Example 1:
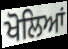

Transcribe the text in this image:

ਖੋਲਿਆਂ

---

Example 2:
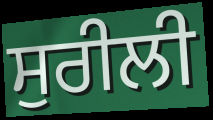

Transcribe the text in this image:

ਸੁਰੀਲੀ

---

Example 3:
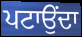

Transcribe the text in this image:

ਪਟਾਉਂਦਾ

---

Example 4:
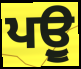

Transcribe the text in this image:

ਪਉੂ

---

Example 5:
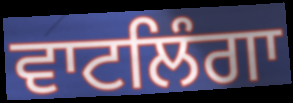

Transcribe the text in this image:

ਵਾਟਲਿੰਗਾ